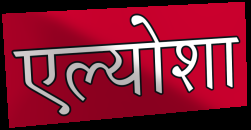
एल्योशा